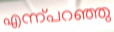
എന്ന്പറഞ്ഞു